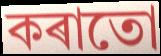
কৰাতো